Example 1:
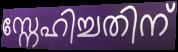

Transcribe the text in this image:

സ്നേഹിച്ചതിന്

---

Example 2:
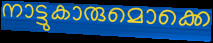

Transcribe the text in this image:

നാട്ടുകാരുമൊക്കെ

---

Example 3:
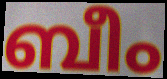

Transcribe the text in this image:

ബീം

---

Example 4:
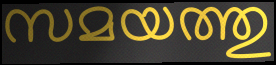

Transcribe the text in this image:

സമയത്തു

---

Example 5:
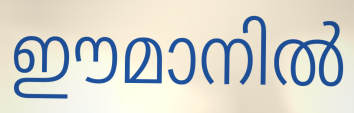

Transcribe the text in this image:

ഈമാനിൽ